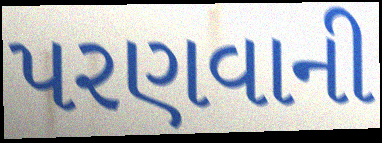
પરણવાની